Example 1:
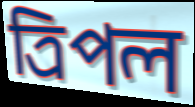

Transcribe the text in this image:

ত্রিপল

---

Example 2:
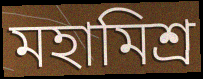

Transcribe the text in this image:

মহামিশ্র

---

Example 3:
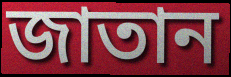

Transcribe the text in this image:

জাতান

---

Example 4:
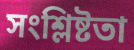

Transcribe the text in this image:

সংশ্লিষ্টতা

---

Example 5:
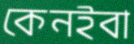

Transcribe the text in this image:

কেনইবা